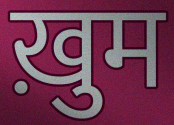
ख़ुम